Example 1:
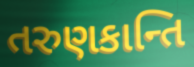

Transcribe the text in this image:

તરુણકાન્તિ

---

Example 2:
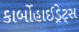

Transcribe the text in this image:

કાર્બોહાઈડ્રેટ્સ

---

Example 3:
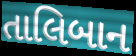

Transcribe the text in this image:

તાલિબાન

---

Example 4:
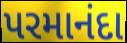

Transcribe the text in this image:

પરમાનંદા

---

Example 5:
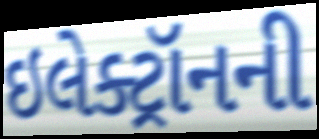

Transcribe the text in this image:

ઇલેક્ટ્રૉનની